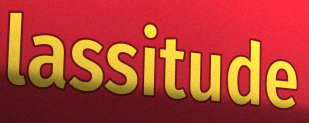
lassitude